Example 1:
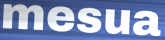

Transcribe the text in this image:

mesua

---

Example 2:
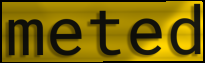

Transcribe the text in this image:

meted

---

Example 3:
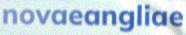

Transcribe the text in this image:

novaeangliae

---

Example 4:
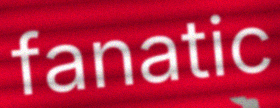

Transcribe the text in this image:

fanatic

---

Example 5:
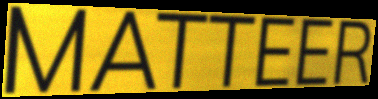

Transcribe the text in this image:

MATTEER